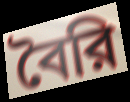
বৈরি